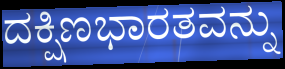
ದಕ್ಷಿಣಭಾರತವನ್ನು